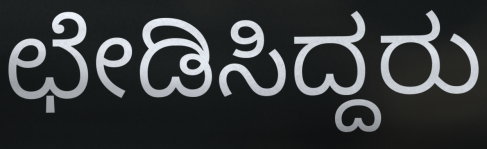
ಛೇಡಿಸಿದ್ದರು